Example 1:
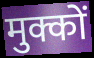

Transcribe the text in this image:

मुक्कों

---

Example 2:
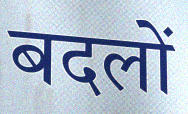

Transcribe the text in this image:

बदलों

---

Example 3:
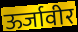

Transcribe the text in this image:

ऊर्जावीर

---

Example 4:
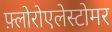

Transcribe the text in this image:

फ़्लोरोएलेस्टोमर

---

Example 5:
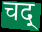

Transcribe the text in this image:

चद्